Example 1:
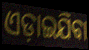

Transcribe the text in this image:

ଏଡ଼ାଇଯିବା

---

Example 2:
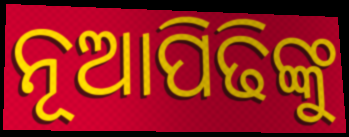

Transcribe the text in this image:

ନୂଆପିଢିଙ୍କୁ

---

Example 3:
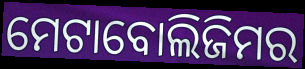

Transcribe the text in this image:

ମେଟାବୋଲିଜିମର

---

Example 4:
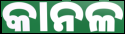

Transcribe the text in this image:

କାନଳ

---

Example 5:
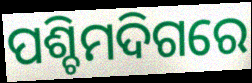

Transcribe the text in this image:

ପଶ୍ଚିମଦିଗରେ